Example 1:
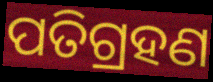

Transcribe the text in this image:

ପତିଗ୍ରହଣ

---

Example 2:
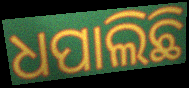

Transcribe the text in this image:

ଧପାଲିଛି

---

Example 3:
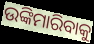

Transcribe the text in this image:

ଉଙ୍କିମାରିବାକୁ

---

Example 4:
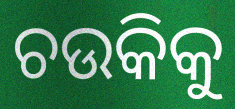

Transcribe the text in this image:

ଚଉକିକୁ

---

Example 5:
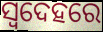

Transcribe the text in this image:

ସ୍ଵଦେହରେ